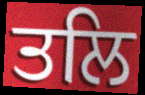
ਤਲਿ